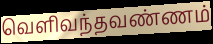
வெளிவந்தவண்ணம்